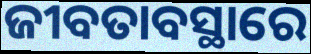
ଜୀବତାବସ୍ଥାରେ